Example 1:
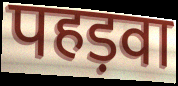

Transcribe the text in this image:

पहड़वा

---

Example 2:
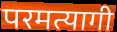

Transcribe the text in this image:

परमत्यागी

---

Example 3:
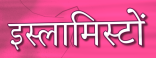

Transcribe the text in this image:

इस्लामिस्टों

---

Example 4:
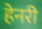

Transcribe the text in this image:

हेनरी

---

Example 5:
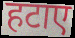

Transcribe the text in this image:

हटाए